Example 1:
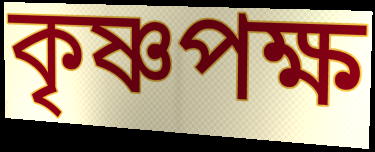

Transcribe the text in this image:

কৃষ্ণপক্ষ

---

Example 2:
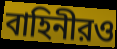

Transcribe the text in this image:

বাহিনীরও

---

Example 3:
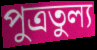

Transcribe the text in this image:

পুত্রতুল্য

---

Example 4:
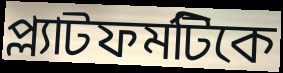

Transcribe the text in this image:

প্ল্যাটফর্মটিকে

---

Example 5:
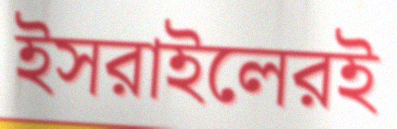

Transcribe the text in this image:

ইসরাইলেরই